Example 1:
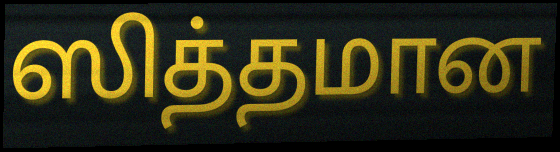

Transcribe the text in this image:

ஸித்தமான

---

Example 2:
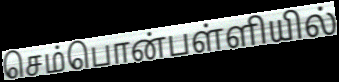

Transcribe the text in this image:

செம்பொன்பள்ளியில்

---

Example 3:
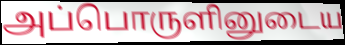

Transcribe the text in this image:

அப்பொருளினுடைய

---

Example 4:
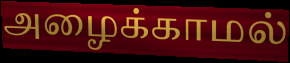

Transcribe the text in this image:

அழைக்காமல்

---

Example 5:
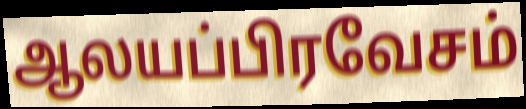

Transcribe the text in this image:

ஆலயப்பிரவேசம்